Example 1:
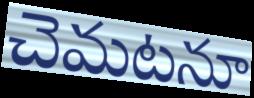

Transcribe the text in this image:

చెమటనూ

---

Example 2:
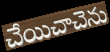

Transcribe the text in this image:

చేయిచాచెను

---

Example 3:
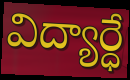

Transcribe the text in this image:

విద్యార్ధే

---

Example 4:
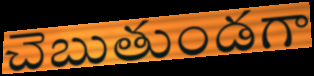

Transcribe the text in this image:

చెబుతుండగా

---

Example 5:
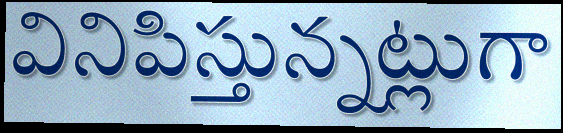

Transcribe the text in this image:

వినిపిస్తున్నట్లుగా